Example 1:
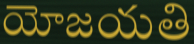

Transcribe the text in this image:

యోజయతి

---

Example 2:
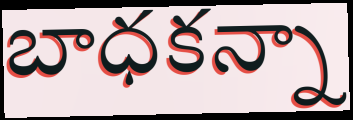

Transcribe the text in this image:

బాధకన్నా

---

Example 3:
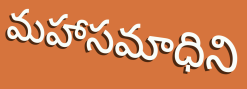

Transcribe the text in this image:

మహాసమాధిని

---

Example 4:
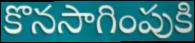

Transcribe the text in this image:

కొనసాగింపుకి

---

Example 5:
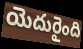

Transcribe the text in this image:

యెదురైంది